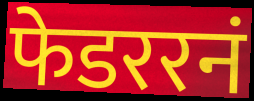
फेडररनं